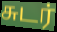
சுடர்